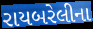
રાયબરેલીના